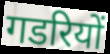
गडरियों